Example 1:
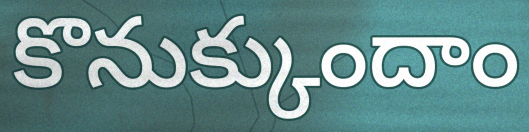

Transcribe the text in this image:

కొనుక్కుందాం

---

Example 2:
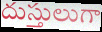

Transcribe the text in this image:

దుస్తులుగా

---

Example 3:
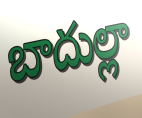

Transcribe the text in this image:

బాదుల్లా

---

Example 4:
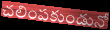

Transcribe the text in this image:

చలింపకుండునో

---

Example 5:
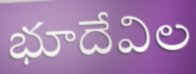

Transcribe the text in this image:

భూదేవిల